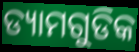
ଡ୍ୟାମଗୁଡିକ